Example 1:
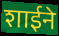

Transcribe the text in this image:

शाईने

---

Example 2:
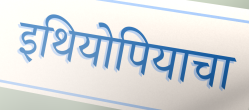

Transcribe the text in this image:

इथियोपियाचा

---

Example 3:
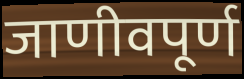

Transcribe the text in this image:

जाणीवपूर्ण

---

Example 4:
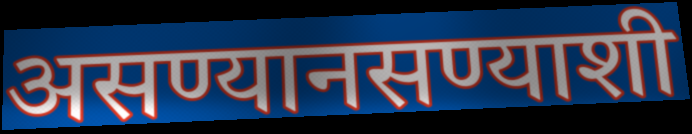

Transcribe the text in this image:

असण्यानसण्याशी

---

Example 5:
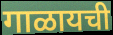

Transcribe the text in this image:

गाळायची